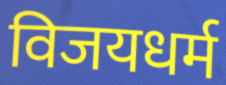
विजयधर्म